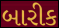
બારીક